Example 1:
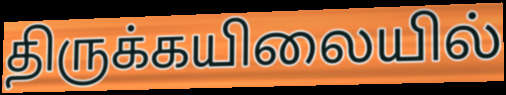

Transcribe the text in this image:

திருக்கயிலையில்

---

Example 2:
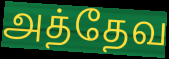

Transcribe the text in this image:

அத்தேவ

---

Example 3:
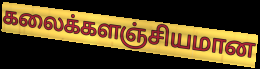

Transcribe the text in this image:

கலைக்களஞ்சியமான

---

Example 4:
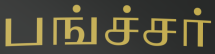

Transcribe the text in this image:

பங்ச்சர்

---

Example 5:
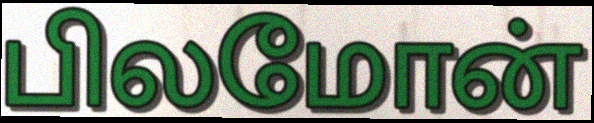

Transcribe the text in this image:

பிலமோன்